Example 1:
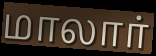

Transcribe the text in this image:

மாலார்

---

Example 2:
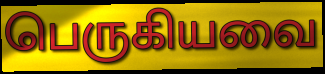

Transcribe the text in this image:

பெருகியவை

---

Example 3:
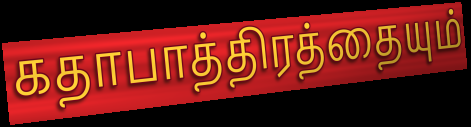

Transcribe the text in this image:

கதாபாத்திரத்தையும்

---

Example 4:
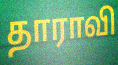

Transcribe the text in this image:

தாராவி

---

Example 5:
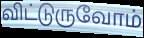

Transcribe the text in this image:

விட்டுருவோம்